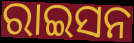
ରାଇସନ